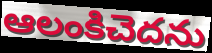
ఆలంకిచెదను